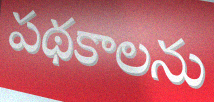
పథకాలను